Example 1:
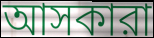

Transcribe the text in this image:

আসকারা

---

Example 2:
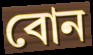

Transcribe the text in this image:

বোন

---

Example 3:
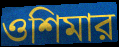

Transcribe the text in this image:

ওশিমার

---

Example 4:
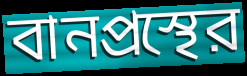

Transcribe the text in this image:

বানপ্রস্থের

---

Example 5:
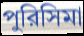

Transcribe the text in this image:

পুরিসিমা